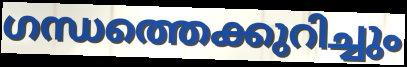
ഗന്ധത്തെക്കുറിച്ചും